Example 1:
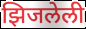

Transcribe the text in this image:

झिजलेली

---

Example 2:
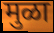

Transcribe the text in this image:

मुळा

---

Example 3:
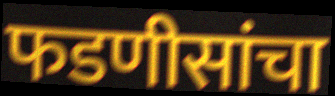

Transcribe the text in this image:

फडणीसांचा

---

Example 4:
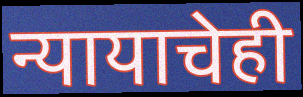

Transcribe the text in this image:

न्यायाचेही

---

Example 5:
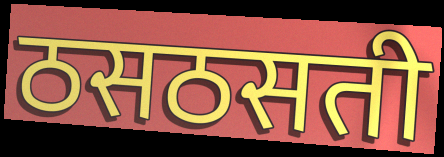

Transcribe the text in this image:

ठसठसती